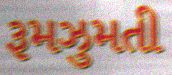
રૂમઝુમતી